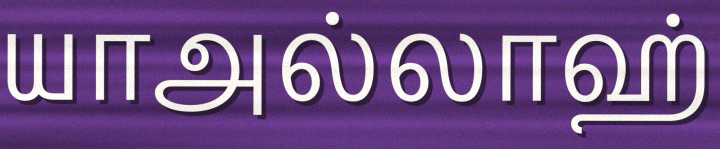
யாஅல்லாஹ்